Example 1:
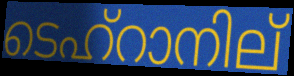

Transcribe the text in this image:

ടെഹ്റാനില്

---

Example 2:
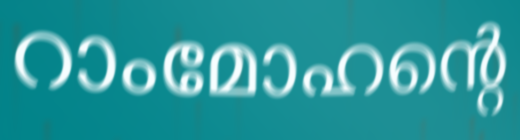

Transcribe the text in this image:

റാംമോഹന്റെ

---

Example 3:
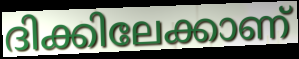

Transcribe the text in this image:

ദിക്കിലേക്കാണ്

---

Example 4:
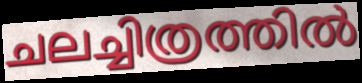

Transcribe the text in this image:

ചലച്ചിത്രത്തിൽ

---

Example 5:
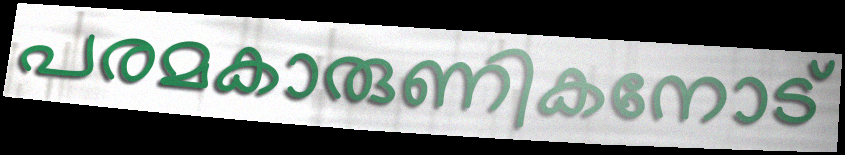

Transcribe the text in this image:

പരമകാരുണികനോട്